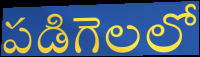
పడిగెలలో